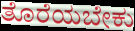
ತೊರೆಯಬೇಕು